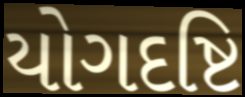
યોગદષ્ટિ